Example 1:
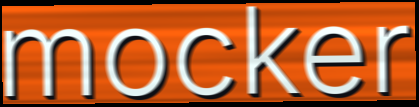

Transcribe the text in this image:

mocker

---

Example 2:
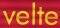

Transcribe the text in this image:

velte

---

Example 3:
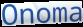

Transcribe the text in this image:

Onoma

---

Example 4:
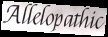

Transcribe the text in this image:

Allelopathic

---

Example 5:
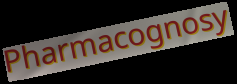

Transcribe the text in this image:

Pharmacognosy